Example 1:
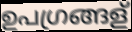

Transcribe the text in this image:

ഉപഗ്രങ്ങള്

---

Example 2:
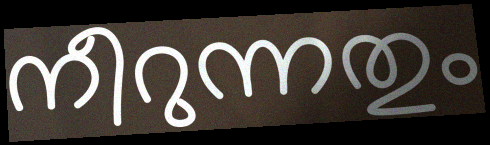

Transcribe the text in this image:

നീറുന്നതും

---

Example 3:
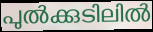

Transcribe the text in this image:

പുൽക്കുടിലിൽ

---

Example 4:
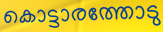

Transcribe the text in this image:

കൊട്ടാരത്തോടു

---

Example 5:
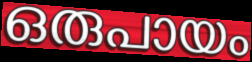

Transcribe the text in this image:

ഒരുപായം